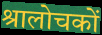
श्रालोचकों